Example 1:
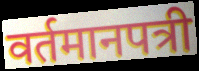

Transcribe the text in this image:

वर्तमानपत्री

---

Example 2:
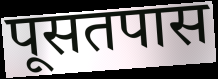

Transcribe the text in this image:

पूसतपास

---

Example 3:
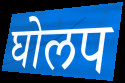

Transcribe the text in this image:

घोलप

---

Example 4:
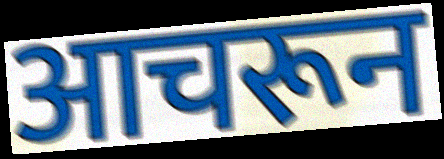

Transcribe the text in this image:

आचरून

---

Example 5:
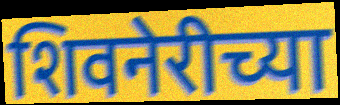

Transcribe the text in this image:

शिवनेरीच्या